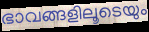
ഭാവങ്ങളിലൂടെയും